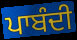
ਪਾਬੰਦੀ